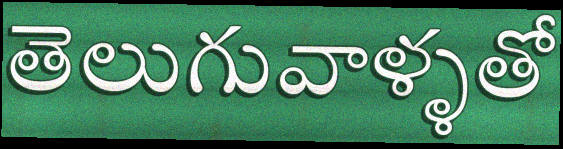
తెలుగువాళ్ళతో